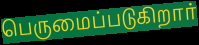
பெருமைப்படுகிறார்